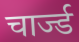
चार्ज्ड